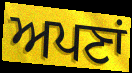
ਅਪਣਾਂ